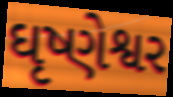
ઘૃષ્ણેશ્વર